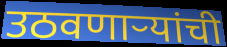
उठवणाऱ्यांची